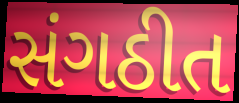
સંગઠીત